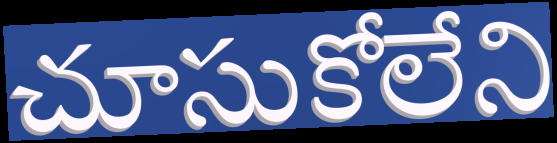
చూసుకోలేని